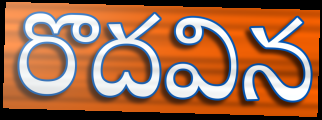
రొదవిన